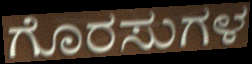
ಗೊರಸುಗಳ